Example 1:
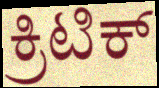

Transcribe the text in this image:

ಕ್ರಿಟಿಕ್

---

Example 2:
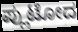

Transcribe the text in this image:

ಪ್ಲುಟೋದ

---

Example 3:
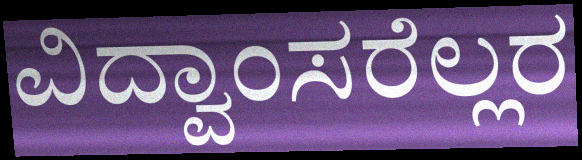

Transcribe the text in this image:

ವಿದ್ವಾಂಸರೆಲ್ಲರ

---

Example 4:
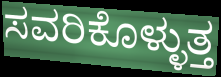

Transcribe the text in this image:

ಸವರಿಕೊಳ್ಳುತ್ತ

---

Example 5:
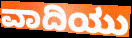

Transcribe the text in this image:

ವಾದಿಯು